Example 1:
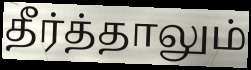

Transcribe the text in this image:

தீர்த்தாலும்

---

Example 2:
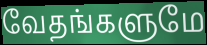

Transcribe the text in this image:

வேதங்களுமே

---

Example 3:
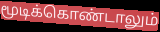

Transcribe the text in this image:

மூடிக்கொண்டாலும்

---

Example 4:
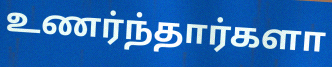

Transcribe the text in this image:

உணர்ந்தார்களா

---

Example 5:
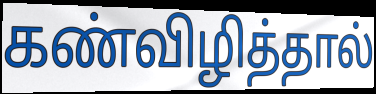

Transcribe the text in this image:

கண்விழித்தால்